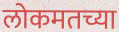
लोकमतच्या